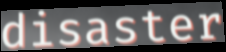
disaster